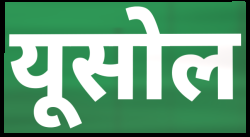
यूसोल